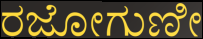
ರಜೋಗುಣೀ